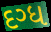
દગ્ધ